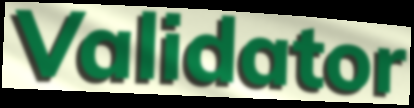
Validator